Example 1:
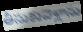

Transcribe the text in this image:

తీసుకువెళ్లాను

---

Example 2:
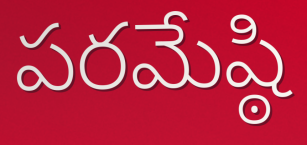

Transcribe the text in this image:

పరమేష్ఠి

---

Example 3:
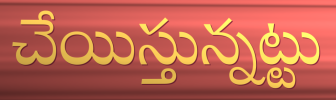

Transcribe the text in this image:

చేయిస్తున్నట్టు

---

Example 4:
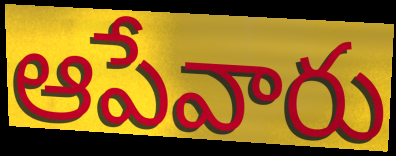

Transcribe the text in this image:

ఆపేవారు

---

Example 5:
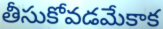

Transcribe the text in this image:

తీసుకోవడమేకాక